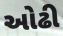
ઓઢી